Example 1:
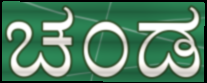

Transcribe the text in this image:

ಚಂಡ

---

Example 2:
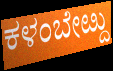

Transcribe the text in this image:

ಕಳಂಬೇೞ್ದು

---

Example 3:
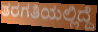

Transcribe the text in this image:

ತರಗತಿಯಲ್ಲಿದ್ದೆ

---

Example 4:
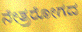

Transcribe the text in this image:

ನೇತ್ರರೋಗದ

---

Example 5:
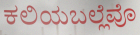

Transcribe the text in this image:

ಕಲಿಯಬಲ್ಲೆವೊ